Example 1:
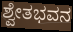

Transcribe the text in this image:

ಶ್ವೇತಭವನ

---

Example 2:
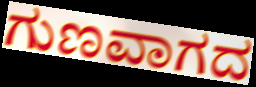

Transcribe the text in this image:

ಗುಣವಾಗದ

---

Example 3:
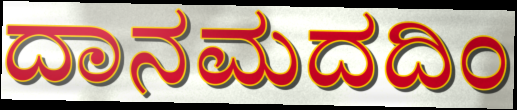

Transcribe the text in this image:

ದಾನಮದದಿಂ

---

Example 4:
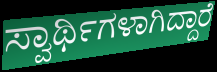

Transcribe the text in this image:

ಸ್ವಾರ್ಥಿಗಳಾಗಿದ್ದಾರೆ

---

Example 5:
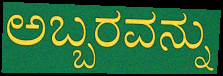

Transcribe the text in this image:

ಅಬ್ಬರವನ್ನು